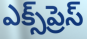
ఎక్స్‌ప్రెస్